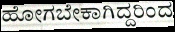
ಹೋಗಬೇಕಾಗಿದ್ದರಿಂದ